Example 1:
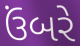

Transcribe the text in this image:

ઉંબરે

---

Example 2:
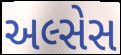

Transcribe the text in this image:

અલ્સેસ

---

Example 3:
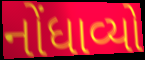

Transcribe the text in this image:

નોંધાવ્યો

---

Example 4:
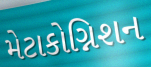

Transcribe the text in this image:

મેટાકોગ્નિશન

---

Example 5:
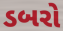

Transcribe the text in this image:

ડબરો